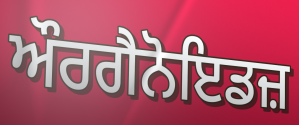
ਔਰਗੈਨੋਇਡਜ਼